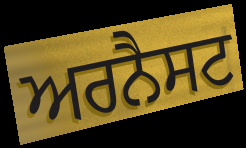
ਅਰਨੈਸਟ